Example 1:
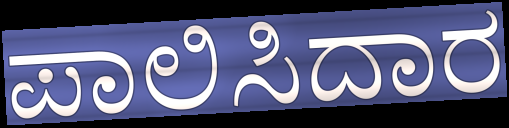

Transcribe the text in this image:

ಪಾಲಿಸಿದಾರ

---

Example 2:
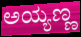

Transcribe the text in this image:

ಅಯ್ಯಣ್ಣ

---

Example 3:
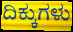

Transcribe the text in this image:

ದಿಕ್ಕುಗಳು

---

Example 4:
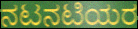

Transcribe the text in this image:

ನಟನಟಿಯರ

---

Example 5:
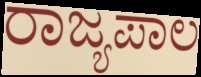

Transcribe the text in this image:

ರಾಜ್ಯಪಾಲ